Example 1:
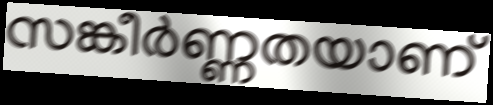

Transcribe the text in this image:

സങ്കീർണ്ണതയാണ്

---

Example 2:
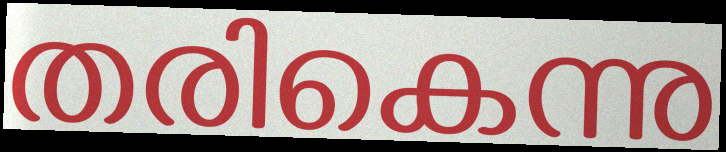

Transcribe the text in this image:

തരികെന്നു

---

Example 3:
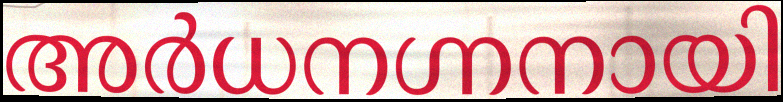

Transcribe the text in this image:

അർധനഗ്നനായി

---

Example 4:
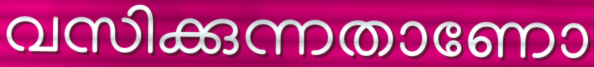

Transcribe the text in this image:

വസിക്കുന്നതാണോ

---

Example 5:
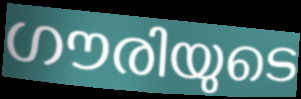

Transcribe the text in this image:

ഗൗരിയുടെ